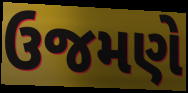
ઉજમણે